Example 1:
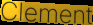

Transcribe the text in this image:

Clement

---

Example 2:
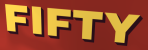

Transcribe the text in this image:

FIFTY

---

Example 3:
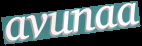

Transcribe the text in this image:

avunaa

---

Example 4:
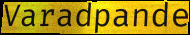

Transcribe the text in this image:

Varadpande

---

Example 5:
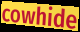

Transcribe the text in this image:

cowhide